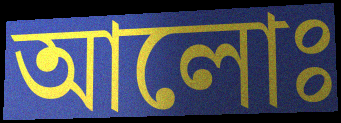
আলোঃ